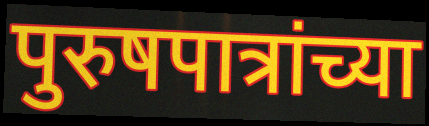
पुरुषपात्रांच्या